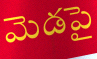
మెడపై